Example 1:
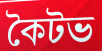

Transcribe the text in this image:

কৈটভ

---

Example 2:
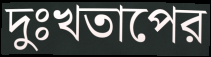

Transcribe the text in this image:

দুঃখতাপের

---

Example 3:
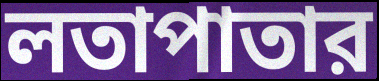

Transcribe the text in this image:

লতাপাতার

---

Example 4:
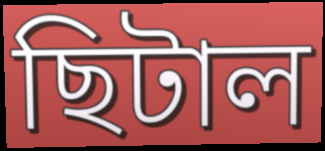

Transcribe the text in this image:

ছিটাল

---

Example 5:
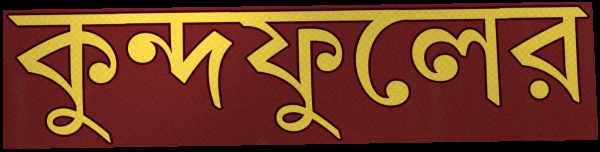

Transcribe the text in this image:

কুন্দফুলের